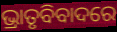
ଭ୍ରାତୃବିବାଦରେ